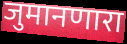
जुमानणारा